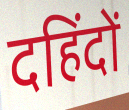
दहिंदों